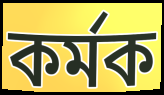
কৰ্মক